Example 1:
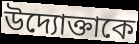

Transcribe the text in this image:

উদ্যোক্তাকে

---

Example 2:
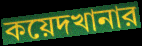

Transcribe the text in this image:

কয়েদখানার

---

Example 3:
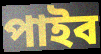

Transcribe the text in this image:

পাইব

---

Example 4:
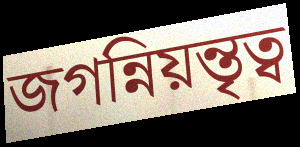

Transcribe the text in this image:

জগন্নিয়ন্তৃত্ব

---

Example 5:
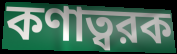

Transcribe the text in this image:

কণাত্বরক